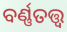
ବର୍ଣ୍ଣତତ୍ତ୍ଵ